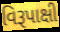
વિરૂપાક્ષી